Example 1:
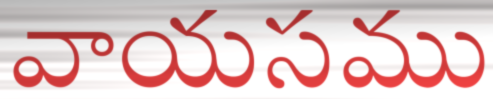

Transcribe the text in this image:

వాయసము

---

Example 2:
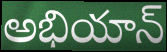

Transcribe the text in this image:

అభియాన్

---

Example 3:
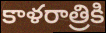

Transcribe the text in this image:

కాళరాత్రికి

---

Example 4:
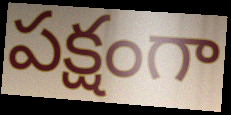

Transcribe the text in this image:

పక్షంగా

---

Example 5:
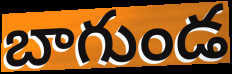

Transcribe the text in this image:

బాగుండ